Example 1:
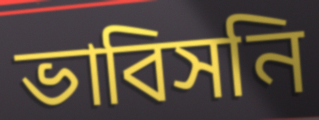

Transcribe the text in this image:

ভাবিসনি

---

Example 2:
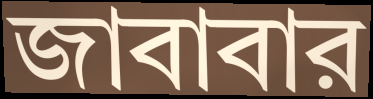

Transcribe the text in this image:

জাবাবার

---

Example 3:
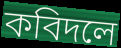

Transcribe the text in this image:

কবিদলে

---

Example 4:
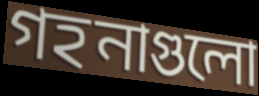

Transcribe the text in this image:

গহনাগুলো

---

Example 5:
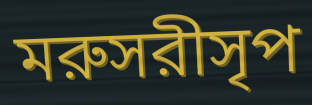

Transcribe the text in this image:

মরুসরীসৃপ